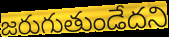
జరుగుతుండేదని